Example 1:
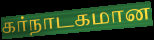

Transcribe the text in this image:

கர்நாடகமான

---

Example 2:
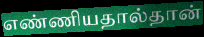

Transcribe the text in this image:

எண்ணியதால்தான்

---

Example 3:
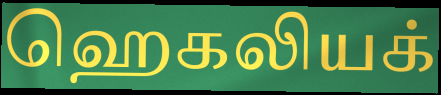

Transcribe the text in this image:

ஹெகலியக்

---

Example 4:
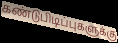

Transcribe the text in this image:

கண்டுபிடிப்புகளுக்கு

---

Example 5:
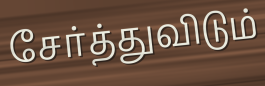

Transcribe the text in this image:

சேர்த்துவிடும்